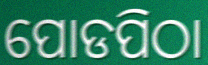
ପୋଡପିଠା